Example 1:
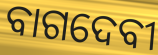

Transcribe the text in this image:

ବାଗଦେବୀ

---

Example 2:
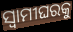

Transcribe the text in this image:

ସ୍ୱାମୀଘରକୁ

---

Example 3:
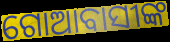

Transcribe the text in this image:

ଗୋଆବାସୀଙ୍କ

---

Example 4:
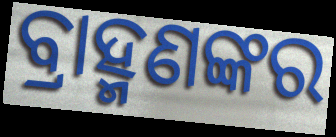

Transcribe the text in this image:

ବ୍ରାହ୍ମଣଙ୍କର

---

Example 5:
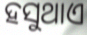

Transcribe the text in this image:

ହସୁଥାଏ